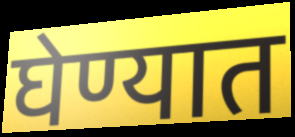
घेण्यात